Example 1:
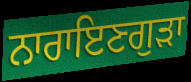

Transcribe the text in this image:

ਨਾਰਾਇਣਗੁੜਾ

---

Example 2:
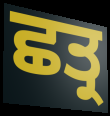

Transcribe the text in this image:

ਛਤ੍ਰ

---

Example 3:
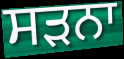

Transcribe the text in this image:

ਸੜਨਾ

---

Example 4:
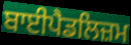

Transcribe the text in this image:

ਬਾਈਪੈਡਲਿਜ਼ਮ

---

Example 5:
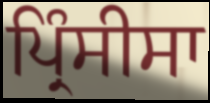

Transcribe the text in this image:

ਪ੍ਰਿੰਸੀਸਾ